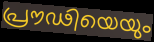
പ്രൗഢിയെയും